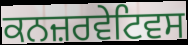
ਕਨਜ਼ਰਵੇਟਿਵਸ